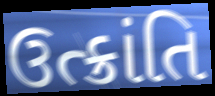
ઉત્ક્રાંતિ